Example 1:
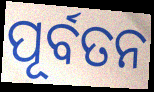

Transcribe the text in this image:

ପୂର୍ବତନ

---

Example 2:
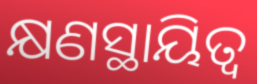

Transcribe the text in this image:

କ୍ଷଣସ୍ଥାୟିତ୍ୱ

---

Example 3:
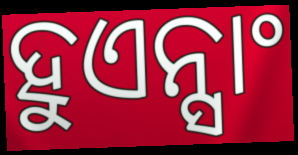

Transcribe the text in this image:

ହୁଏନ୍ସାଂ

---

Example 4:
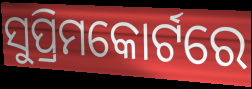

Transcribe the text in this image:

ସୁପ୍ରିମକୋର୍ଟରେ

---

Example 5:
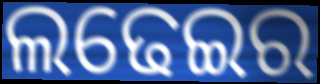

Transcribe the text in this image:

ଲଢେଇର